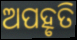
ଅପହୃତି